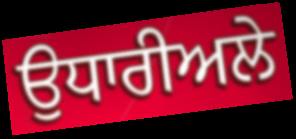
ਉਧਾਰੀਅਲੇ